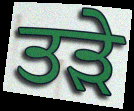
ਤੜੇ